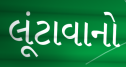
લૂંટાવાનો